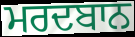
ਮਰਦਬਾਨ